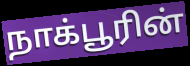
நாக்பூரின்